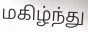
மகிழ்ந்து